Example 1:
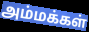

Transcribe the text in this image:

அம்மக்கள்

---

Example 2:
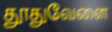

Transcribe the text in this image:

தூதுவேளை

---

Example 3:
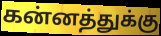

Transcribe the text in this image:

கன்னத்துக்கு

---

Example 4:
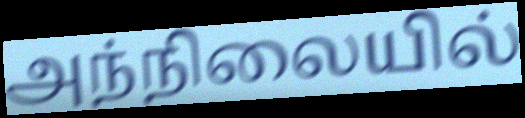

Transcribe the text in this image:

அந்நிலையில்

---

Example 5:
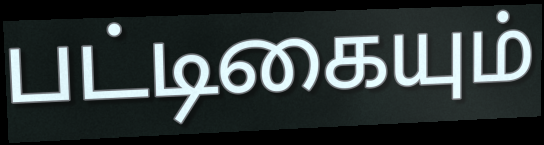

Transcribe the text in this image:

பட்டிகையும்